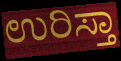
ಉರಿಸ್ತಾ